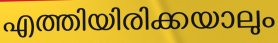
എത്തിയിരിക്കയാലും